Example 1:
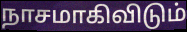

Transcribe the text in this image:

நாசமாகிவிடும்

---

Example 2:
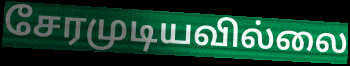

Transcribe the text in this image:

சேரமுடியவில்லை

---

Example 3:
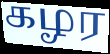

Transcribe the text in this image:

கழர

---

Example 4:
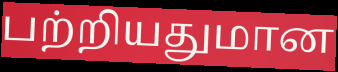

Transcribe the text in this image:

பற்றியதுமான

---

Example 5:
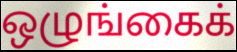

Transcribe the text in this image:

ஒழுங்கைக்